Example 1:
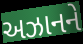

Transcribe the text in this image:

અઝાનને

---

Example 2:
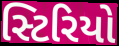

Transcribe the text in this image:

સ્ટિરિયો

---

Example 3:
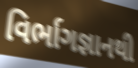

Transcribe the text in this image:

વિર્ભાગજ્ઞાનથી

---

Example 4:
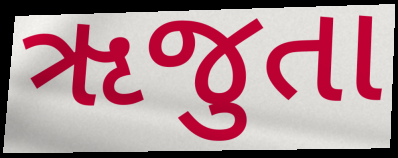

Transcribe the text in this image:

ૠજુતા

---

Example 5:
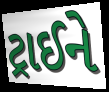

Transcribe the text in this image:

ટ્રાઈને